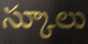
స్కూలు